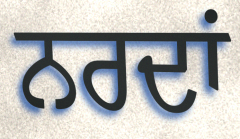
ਨਰਦਾਂ